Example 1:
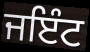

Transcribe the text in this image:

ਜਇੰਟ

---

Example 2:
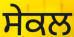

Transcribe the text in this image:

ਸੇਕਲ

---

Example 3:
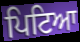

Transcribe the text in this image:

ਪਿਟਿਆ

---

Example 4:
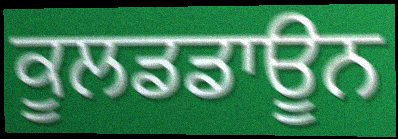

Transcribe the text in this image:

ਕੂਲਡਡਾਊਨ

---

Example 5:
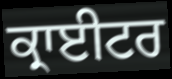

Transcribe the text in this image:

ਕ੍ਰਾਈਟਰ